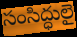
సంసిద్ధులై